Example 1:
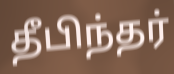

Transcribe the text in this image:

தீபிந்தர்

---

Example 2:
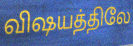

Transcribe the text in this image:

விஷயத்திலே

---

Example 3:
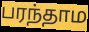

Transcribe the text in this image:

பரந்தாம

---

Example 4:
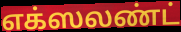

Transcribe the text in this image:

எக்ஸலண்ட்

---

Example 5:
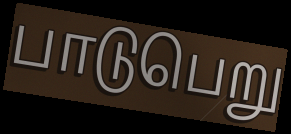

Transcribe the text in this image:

பாடுபெறு